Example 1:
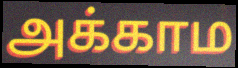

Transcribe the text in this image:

அக்காம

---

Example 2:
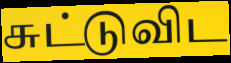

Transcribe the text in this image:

சுட்டுவிட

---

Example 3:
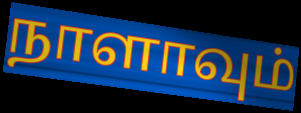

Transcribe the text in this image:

நாளாவும்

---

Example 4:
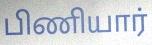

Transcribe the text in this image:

பிணியார்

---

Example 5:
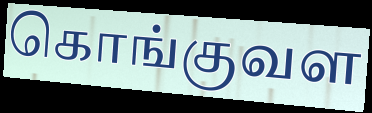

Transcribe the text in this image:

கொங்குவள